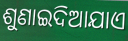
ଶୁଣାଇଦିଆଯାଏ